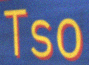
Tso